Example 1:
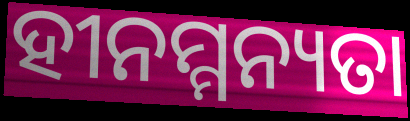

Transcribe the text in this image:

ହୀନମ୍ମନ୍ୟତା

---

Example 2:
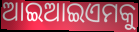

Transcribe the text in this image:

ଆଇଆଇଏମକୁ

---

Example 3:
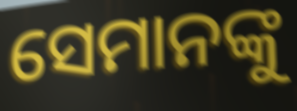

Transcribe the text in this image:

ସେମାନଙ୍କୁ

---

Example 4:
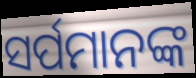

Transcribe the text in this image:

ସର୍ପମାନଙ୍କ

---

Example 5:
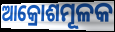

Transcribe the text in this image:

ଆକ୍ରୋଶମୂଳକ